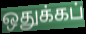
ஒதுக்கப்